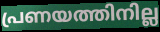
പ്രണയത്തിനില്ല